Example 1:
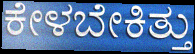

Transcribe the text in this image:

ಕೇಳಬೇಕಿತ್ತು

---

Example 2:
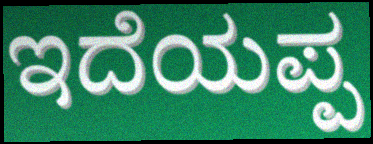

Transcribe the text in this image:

ಇದೆಯಪ್ಪ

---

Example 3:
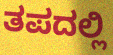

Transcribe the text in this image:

ತಪದಲ್ಲಿ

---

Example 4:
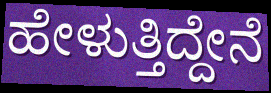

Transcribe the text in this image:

ಹೇಳುತ್ತಿದ್ದೇನೆ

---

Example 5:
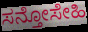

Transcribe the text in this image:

ಸನ್ತೋಸೇಹಿ